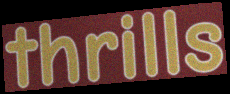
thrills